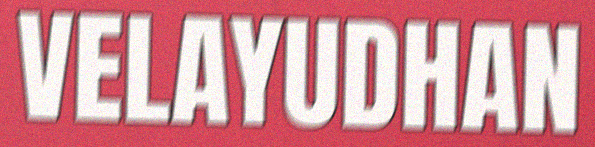
VELAYUDHAN